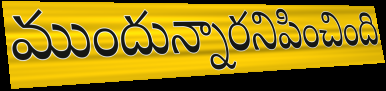
ముందున్నారనిపించింది